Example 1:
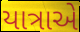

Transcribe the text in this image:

યાત્રાએ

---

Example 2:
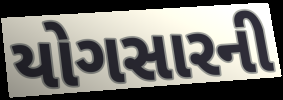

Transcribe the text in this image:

યોગસારની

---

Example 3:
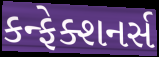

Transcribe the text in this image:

કન્ફેક્શનર્સ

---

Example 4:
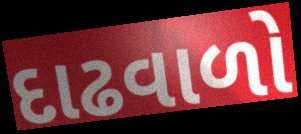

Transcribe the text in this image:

દાઢવાળો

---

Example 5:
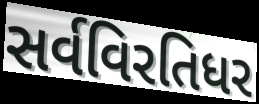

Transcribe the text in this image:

સર્વવિરતિધર